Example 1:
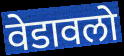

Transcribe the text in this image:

वेडावलो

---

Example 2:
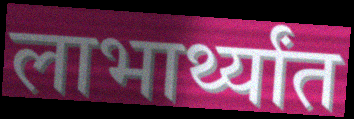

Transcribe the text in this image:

लाभार्थ्यांत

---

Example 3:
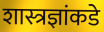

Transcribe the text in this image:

शास्त्रज्ञांकडे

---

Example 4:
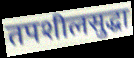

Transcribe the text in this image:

तपशीलसुद्धा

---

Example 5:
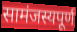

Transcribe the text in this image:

सामंजस्यपूर्ण